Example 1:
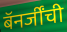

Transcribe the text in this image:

बॅनर्जींची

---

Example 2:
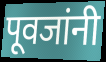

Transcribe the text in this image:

पूवजांनी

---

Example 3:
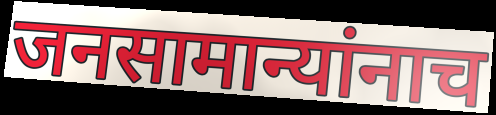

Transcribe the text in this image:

जनसामान्यांनाच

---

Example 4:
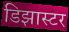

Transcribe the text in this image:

डिझास्टर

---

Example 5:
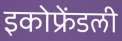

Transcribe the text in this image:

इकोफ्रेंडली